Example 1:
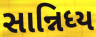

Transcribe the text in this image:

સાન્નિધ્ય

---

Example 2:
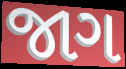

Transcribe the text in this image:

જાગ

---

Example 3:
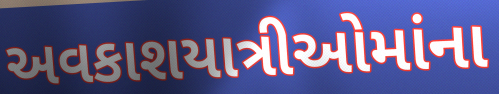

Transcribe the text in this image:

અવકાશયાત્રીઓમાંના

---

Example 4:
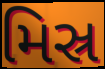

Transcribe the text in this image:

મિસ્ર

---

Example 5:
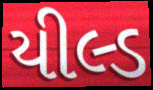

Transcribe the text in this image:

યીલ્ડ